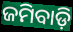
ଜମିବାଡ଼ି